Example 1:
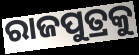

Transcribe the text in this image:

ରାଜପୁତ୍ରକୁ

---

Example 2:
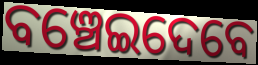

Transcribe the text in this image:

ବଞ୍ଚେଇଦେବେ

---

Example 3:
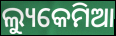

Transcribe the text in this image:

ଲ୍ୟୁକେମିଆ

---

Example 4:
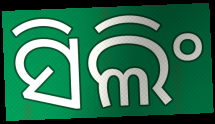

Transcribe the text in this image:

ସିଲିଂ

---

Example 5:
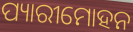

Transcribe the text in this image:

ପ୍ୟାରୀମୋହନ